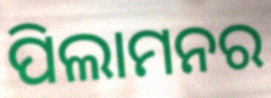
ପିଲାମନର